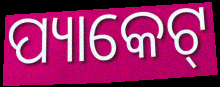
ପ୍ୟାକେଟ୍